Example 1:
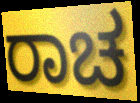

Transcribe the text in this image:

ರಾಚ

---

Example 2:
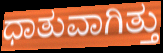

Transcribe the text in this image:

ಧಾತುವಾಗಿತ್ತು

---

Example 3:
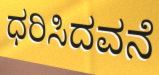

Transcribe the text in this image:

ಧರಿಸಿದವನೆ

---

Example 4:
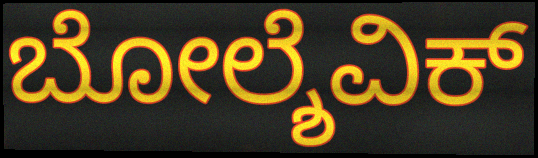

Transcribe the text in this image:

ಬೋಲ್ಶೆವಿಕ್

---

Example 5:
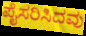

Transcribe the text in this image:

ಪೈಸರಿಸಿದವು